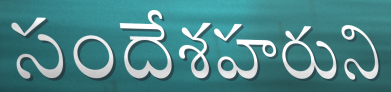
సందేశహరుని